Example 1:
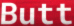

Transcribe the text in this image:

Butt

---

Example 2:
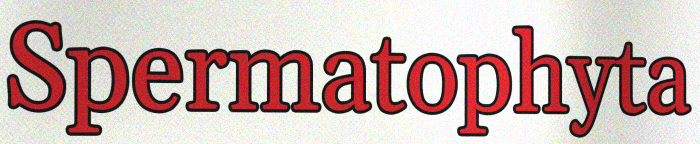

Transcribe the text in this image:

Spermatophyta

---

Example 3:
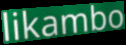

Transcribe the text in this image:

likambo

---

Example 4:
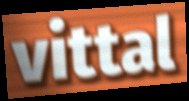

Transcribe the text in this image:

vittal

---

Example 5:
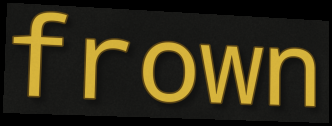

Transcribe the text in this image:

frown